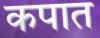
कपात